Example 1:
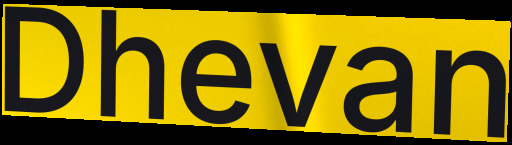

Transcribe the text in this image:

Dhevan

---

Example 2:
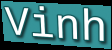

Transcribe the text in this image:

Vinh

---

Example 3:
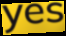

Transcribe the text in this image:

yes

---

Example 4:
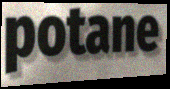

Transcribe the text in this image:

potane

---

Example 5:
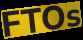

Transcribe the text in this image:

FTOs